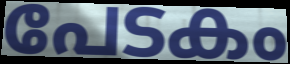
പേടകം